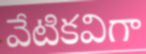
వేటికవిగా